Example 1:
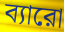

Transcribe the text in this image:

ব্যারো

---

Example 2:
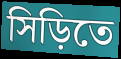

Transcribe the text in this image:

সিড়িতে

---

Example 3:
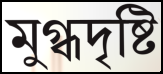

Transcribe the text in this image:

মুগ্ধদৃষ্টি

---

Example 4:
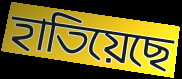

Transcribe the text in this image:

হাতিয়েছে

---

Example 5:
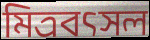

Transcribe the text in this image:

মিত্রবৎসল